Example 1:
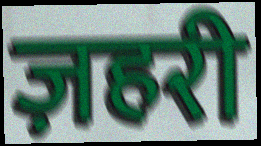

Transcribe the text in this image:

ज़हरी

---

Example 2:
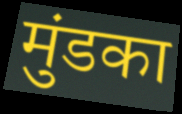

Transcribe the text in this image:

मुंडका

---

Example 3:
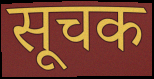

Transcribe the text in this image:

सूचक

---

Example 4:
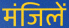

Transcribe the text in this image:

मंजिलें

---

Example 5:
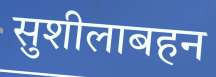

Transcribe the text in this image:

सुशीलाबहन